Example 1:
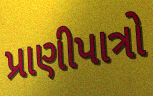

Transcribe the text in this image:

પ્રાણીપાત્રો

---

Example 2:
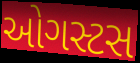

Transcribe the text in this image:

ઓગસ્ટસ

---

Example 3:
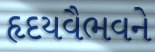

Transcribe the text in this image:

હૃદયવૈભવને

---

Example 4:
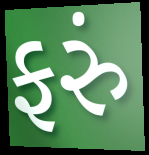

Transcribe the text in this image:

ફરું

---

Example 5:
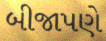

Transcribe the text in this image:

બીજાપણે